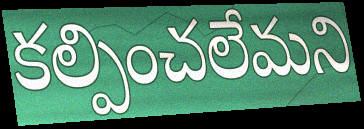
కల్పించలేమని